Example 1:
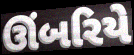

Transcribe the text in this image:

ઊંબરિયે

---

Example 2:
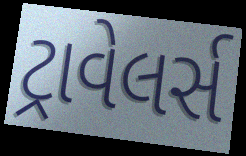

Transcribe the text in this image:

ટ્રાવેલર્સ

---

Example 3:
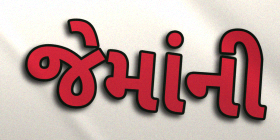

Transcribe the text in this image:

જેમાંની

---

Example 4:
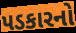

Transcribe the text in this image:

પડકારનો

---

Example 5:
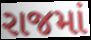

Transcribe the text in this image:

રાજમાં